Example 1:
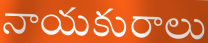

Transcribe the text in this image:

నాయకురాలు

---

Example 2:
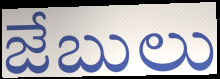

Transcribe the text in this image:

జేబులు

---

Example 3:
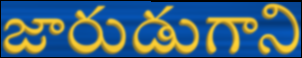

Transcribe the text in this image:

జారుడుగాని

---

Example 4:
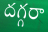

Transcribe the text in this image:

దగ్గరా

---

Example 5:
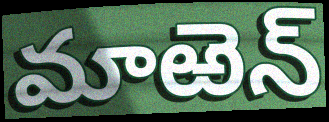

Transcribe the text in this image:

మాఱెన్